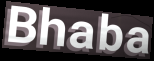
Bhaba